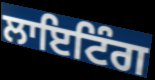
ਲਾਇਟਿੰਗ